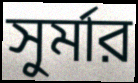
সুর্মার